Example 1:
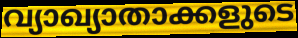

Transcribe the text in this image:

വ്യാഖ്യാതാക്കളുടെ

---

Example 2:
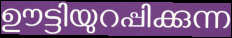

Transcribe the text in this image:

ഊട്ടിയുറപ്പിക്കുന്ന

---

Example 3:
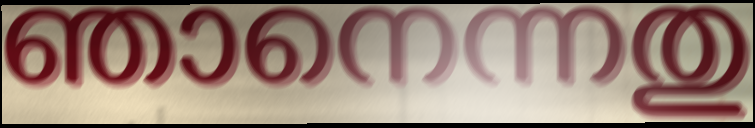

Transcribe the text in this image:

ഞാനെന്നതു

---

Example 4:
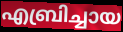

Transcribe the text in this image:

എബ്രിച്ചായ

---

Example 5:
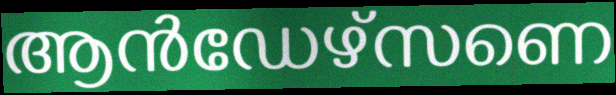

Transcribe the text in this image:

ആൻഡേഴ്സണെ